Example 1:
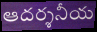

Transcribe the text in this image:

ఆదర్శనీయ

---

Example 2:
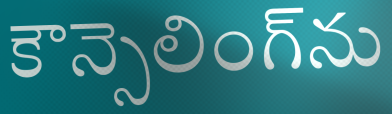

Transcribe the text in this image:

కౌన్సెలింగ్‌ను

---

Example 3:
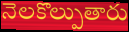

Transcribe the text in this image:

నెలకొల్పుతారు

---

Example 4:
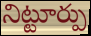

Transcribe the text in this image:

నిట్టూర్పు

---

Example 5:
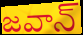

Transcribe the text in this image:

జవాన్